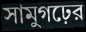
সামুগঢ়ের